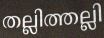
തല്ലിത്തല്ലി